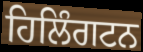
ਹਿਲਿੰਗਟਨ